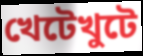
খেটেখুটে